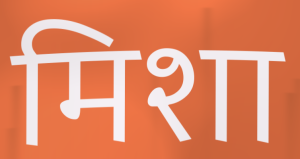
मिशा